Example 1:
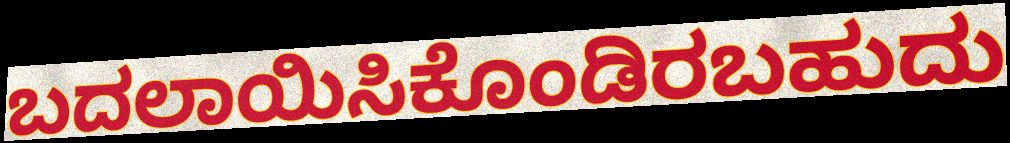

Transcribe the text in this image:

ಬದಲಾಯಿಸಿಕೊಂಡಿರಬಹುದು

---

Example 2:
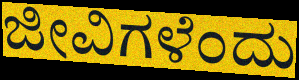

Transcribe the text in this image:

ಜೀವಿಗಳೆಂದು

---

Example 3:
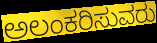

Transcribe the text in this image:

ಅಲಂಕರಿಸುವರು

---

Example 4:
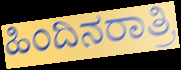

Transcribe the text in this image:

ಹಿಂದಿನರಾತ್ರಿ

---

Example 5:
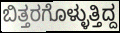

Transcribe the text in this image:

ಬಿತ್ತರಗೊಳ್ಳುತ್ತಿದ್ದ